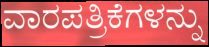
ವಾರಪತ್ರಿಕೆಗಳನ್ನು